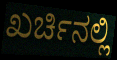
ಖರ್ಚಿನಲ್ಲಿ